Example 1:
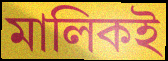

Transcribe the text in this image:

মালিকই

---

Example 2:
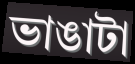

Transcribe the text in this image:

ভাঙাটা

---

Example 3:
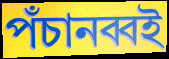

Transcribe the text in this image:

পঁচানব্বই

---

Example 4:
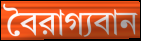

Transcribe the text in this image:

বৈরাগ্যবান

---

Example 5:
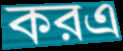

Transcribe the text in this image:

করএ